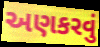
અણકરવું